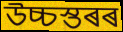
উচ্চস্তৰৰ